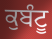
ਕੁਬੰਟੂ